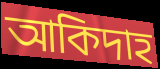
আকিদাহ